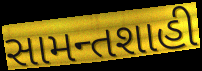
સામન્તશાહી